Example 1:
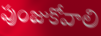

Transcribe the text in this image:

పుంజుకోవాలి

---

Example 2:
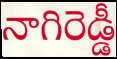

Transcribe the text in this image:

నాగిరెడ్డీ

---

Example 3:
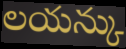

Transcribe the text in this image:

లయన్కు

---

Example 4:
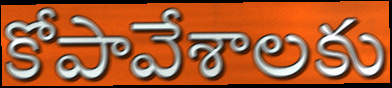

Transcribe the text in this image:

కోపావేశాలకు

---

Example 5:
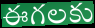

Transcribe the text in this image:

ఈగలకు